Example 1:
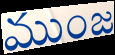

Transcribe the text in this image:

ముంజ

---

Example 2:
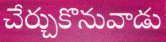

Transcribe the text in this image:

చేర్చుకొనువాడు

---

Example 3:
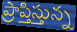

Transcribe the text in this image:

ప్రాప్తిస్తున్న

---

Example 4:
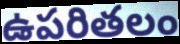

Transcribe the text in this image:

ఉపరితలం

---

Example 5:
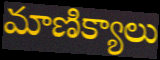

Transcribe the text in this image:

మాణిక్యాలు